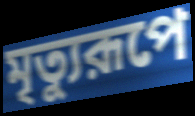
মৃত্যুরূপে